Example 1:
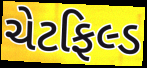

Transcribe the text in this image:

ચેટફિલ્ડ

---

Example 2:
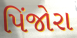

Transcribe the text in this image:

પિંજોરા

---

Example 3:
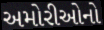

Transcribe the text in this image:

અમોરીઓનો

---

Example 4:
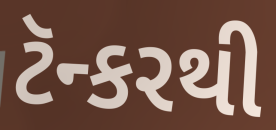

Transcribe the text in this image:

ટૅન્કરથી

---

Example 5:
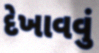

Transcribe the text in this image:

દેખાવવું